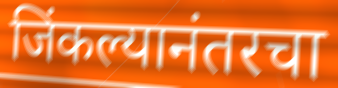
जिंकल्यानंतरचा